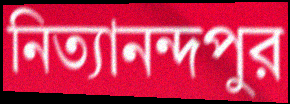
নিত্যানন্দপুর